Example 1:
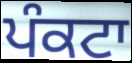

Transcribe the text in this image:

ਪੰਕਟਾ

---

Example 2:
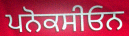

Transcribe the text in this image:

ਪਨੋਕਸੀਓਨ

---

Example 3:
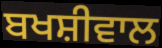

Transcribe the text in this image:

ਬਖਸ਼ੀਵਾਲ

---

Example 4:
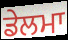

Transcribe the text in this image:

ਡੇਲਮਾ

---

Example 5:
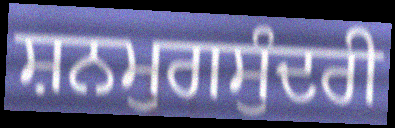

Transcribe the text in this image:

ਸ਼ਨਮੁਗਸੁੰਦਰੀ